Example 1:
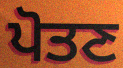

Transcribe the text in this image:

ਪੋਤਣ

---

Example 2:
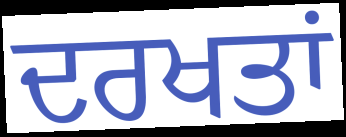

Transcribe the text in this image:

ਦਰਖਤਾਂ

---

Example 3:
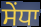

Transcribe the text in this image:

ਸੇਂਧਾ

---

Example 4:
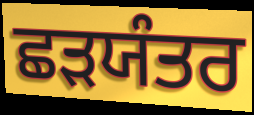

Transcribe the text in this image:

ਛੜਯੰਤਰ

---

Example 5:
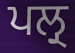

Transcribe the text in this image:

ਪਲ੍ਰ